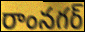
రాంనగర్